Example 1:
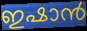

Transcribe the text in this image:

ഇഷാൻ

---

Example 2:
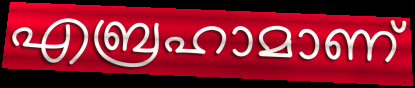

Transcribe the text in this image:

എബ്രഹാമാണ്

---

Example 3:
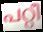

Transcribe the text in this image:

പറ്റീ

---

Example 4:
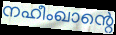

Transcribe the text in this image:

നഹീംഖാന്റെ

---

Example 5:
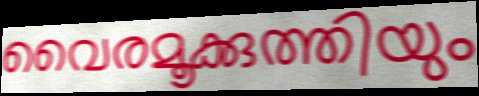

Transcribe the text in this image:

വൈരമൂക്കുത്തിയും